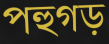
পহুগড়